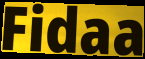
Fidaa